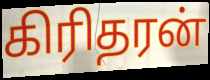
கிரிதரன்